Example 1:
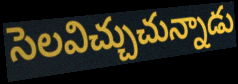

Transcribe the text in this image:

సెలవిచ్చుచున్నాడు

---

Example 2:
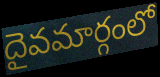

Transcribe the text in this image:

దైవమార్గంలో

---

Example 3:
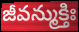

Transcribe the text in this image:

జీవన్ముక్తిః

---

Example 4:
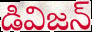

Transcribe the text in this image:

డివిజన్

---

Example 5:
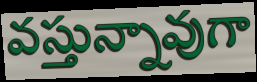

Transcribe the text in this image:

వస్తున్నావుగా